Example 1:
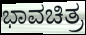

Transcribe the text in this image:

ಭಾವಚಿತ್ರ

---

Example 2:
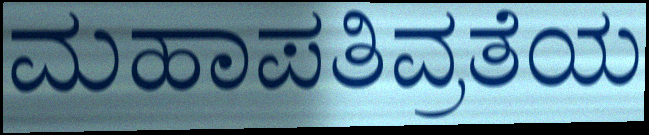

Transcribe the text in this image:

ಮಹಾಪತಿವ್ರತೆಯ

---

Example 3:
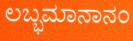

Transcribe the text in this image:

ಲಬ್ಭಮಾನಾನಂ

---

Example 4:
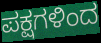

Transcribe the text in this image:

ಪಕ್ಷಗಳಿಂದ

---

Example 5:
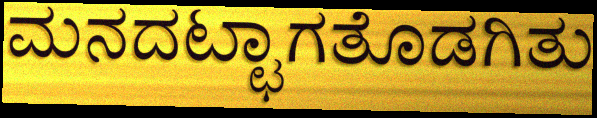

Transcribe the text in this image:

ಮನದಟ್ಟಾಗತೊಡಗಿತು